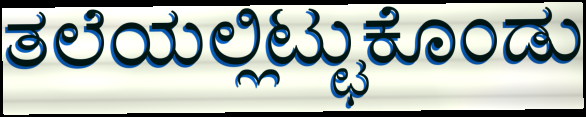
ತಲೆಯಲ್ಲಿಟ್ಟುಕೊಂಡು